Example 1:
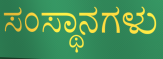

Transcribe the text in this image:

ಸಂಸ್ಥಾನಗಳು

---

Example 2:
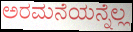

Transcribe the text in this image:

ಅರಮನೆಯನ್ನೆಲ್ಲ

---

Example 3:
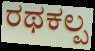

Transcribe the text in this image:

ರಥಕಲ್ಪ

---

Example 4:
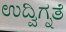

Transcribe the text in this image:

ಉದ್ವಿಗ್ನತೆ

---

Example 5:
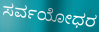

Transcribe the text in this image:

ಸರ್ವಯೋಧರ